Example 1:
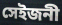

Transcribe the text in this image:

সেইজনী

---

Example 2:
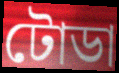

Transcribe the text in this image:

টোডা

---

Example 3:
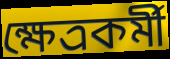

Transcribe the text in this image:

ক্ষেত্ৰকৰ্মী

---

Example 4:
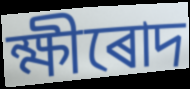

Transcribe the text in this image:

ক্ষীৰোদ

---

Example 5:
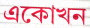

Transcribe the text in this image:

একোখন